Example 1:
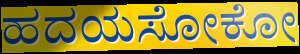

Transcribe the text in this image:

ಹದಯಸೋಕೋ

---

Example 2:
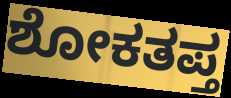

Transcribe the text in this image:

ಶೋಕತಪ್ತ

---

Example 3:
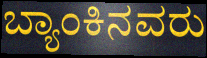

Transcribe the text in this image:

ಬ್ಯಾಂಕಿನವರು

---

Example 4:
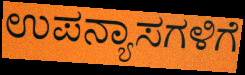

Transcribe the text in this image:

ಉಪನ್ಯಾಸಗಳಿಗೆ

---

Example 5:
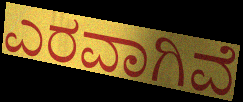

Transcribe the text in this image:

ಎರವಾಗಿವೆ